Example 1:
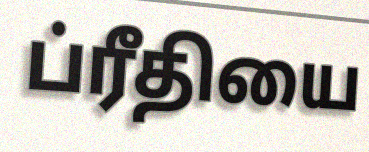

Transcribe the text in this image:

ப்ரீதியை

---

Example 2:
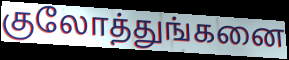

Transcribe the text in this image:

குலோத்துங்கனை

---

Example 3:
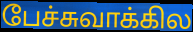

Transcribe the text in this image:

பேச்சுவாக்கில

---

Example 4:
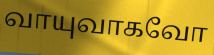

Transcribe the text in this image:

வாயுவாகவோ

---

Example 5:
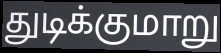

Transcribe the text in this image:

துடிக்குமாறு